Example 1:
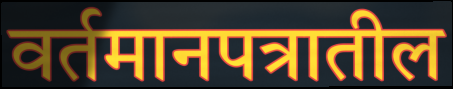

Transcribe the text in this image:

वर्तमानपत्रातील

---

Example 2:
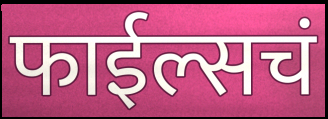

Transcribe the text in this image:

फाईल्सचं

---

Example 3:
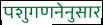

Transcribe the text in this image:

पशुगणनेनुसार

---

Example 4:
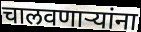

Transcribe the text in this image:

चालवणार्‍यांना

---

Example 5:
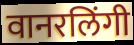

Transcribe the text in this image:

वानरलिंगी